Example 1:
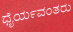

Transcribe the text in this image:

ಧೈರ್ಯವಂತರು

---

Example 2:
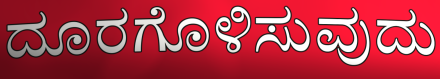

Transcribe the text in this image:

ದೂರಗೊಳಿಸುವುದು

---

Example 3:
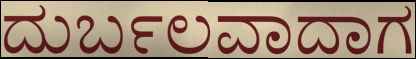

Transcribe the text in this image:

ದುರ್ಬಲವಾದಾಗ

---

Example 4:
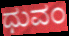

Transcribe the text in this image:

ಧುವಂ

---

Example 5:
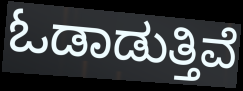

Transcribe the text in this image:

ಓಡಾಡುತ್ತಿವೆ